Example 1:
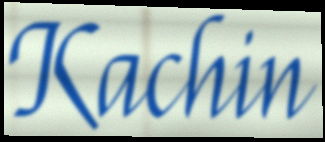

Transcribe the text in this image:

Kachin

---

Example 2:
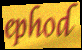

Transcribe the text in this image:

ephod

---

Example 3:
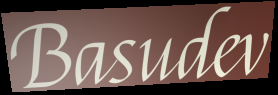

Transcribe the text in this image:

Basudev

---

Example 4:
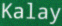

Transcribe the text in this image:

Kalay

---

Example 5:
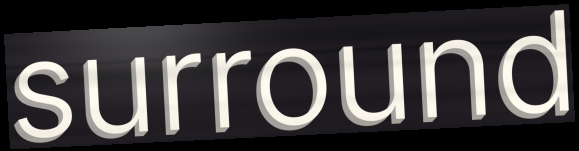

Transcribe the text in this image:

surround